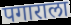
पगाराला